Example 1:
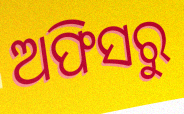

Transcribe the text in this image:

ଅଫିସରୁ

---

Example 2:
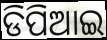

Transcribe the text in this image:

ଡିପିଆଇ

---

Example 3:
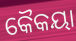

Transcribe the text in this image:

କୈକୟା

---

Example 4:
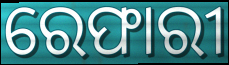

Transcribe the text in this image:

ରେଫାରୀ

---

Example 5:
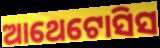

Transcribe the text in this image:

ଆଥେଟୋସିସ